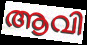
ആവി